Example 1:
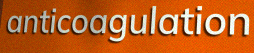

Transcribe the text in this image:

anticoagulation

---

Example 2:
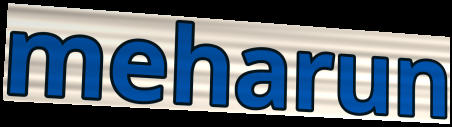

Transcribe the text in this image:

meharun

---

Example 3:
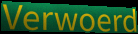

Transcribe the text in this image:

Verwoerd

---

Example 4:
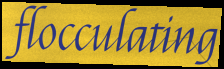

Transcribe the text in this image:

flocculating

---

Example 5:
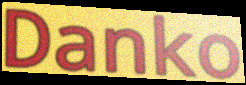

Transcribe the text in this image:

Danko